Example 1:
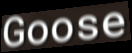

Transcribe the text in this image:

Goose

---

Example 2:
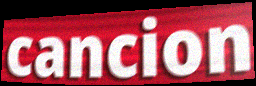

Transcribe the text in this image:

cancion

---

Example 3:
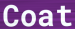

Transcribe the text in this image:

Coat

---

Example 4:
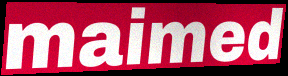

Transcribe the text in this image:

maimed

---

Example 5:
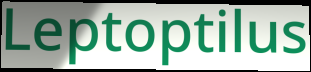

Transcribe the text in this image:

Leptoptilus